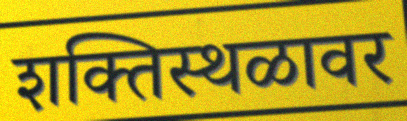
शक्तिस्थळावर